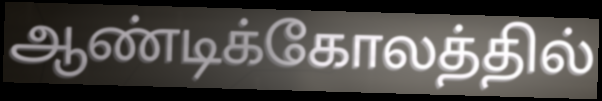
ஆண்டிக்கோலத்தில்